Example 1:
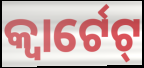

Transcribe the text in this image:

କ୍ୱାର୍ଟେଟ୍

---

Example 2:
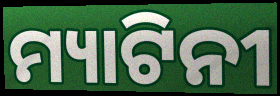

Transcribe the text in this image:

ମ୍ୟାଟିନୀ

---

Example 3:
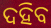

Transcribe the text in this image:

ଦହିବ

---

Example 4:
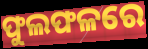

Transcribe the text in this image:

ଫୁଲଫଳରେ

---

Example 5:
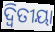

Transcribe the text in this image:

ଦ୍ୱିତୀୟା